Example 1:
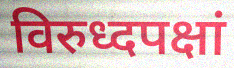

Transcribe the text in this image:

विरुध्दपक्षां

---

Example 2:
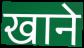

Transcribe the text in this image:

खाने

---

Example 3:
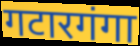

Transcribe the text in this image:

गटारगंगा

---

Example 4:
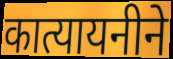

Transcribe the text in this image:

कात्यायनीने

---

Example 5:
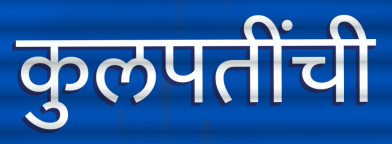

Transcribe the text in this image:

कुलपतींची